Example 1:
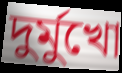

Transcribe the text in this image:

দুর্মুখো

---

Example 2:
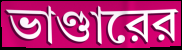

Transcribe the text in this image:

ভাণ্ডারের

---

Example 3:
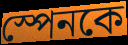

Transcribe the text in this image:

স্পেনকে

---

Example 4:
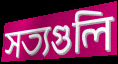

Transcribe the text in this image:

সত্যগুলি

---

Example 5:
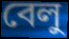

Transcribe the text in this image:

বেলু